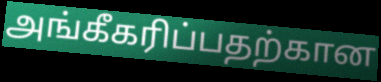
அங்கீகரிப்பதற்கான